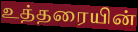
உத்தரையின்